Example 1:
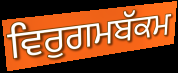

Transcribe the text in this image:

ਵਿਰੁਗਮਬੱਕਮ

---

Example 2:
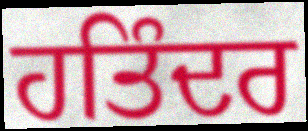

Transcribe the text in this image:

ਹਤਿੰਦਰ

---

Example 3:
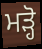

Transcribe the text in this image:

ਮੜ੍ਹੋ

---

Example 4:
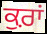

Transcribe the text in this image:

ਕ਼ੁਰਾਂ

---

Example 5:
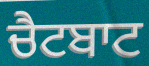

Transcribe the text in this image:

ਚੈਟਬਾਟ